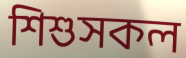
শিশুসকল